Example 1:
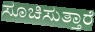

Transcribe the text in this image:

ಸೂಚಿಸುತ್ತಾರೆ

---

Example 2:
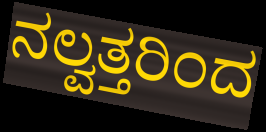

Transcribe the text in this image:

ನಲ್ವತ್ತರಿಂದ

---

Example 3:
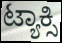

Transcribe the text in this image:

ಟ್ಯಾಕ್ಸಿ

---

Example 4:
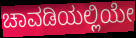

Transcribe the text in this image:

ಚಾವಡಿಯಲ್ಲಿಯೇ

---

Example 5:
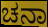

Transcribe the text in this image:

ಚನಾ